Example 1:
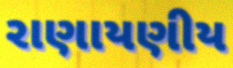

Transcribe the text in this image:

રાણાયણીય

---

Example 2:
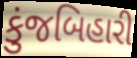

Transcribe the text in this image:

કુંજબિહારી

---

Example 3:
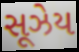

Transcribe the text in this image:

સૂઝેય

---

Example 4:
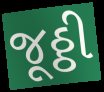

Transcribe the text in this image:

જૂઠ્ઠી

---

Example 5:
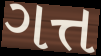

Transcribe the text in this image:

ગત્ત